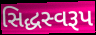
સિદ્ધસ્વરૂપ